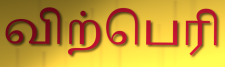
விற்பெரி